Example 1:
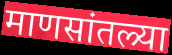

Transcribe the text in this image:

माणसांतल्या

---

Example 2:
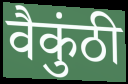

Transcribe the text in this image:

वैकुंठी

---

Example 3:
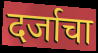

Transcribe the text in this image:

दर्जाचा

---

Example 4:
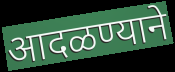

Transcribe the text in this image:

आदळण्याने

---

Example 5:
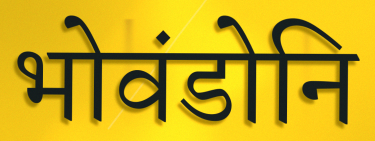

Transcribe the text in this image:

भोवंडोनि